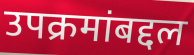
उपक्रमांबद्दल